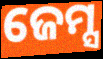
ଜେମ୍ସ